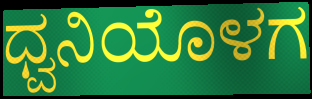
ಧ್ವನಿಯೊಳಗ